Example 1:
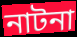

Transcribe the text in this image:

নাটনা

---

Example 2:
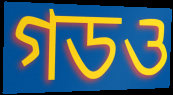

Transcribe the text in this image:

গডও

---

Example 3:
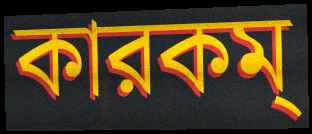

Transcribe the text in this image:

কারকম্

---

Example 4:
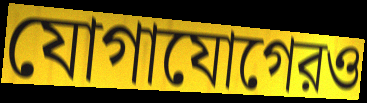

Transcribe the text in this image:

যোগাযোগেরও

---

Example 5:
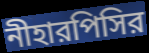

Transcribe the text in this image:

নীহারপিসির